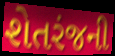
શેતરંજની